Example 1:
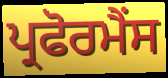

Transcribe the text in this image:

ਪ੍ਰਫੋਰਮੈਂਸ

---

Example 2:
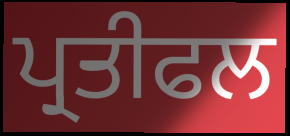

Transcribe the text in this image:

ਪ੍ਰਤੀਫਲ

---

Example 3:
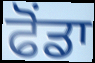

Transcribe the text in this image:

ਫੋਂਡਾ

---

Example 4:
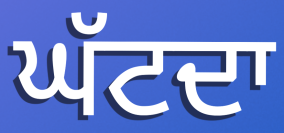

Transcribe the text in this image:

ਘੱਟਦਾ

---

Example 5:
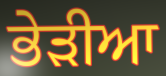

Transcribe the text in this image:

ਭੇੜੀਆ